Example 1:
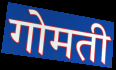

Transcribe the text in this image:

गोमती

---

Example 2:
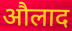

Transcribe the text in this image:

औलाद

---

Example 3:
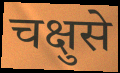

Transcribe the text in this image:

चक्षुसे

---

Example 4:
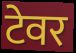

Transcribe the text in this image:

टेवर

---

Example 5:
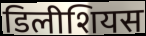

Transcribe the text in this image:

डिलीशियस